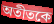
অতীতকে